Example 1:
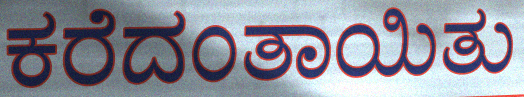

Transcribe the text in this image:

ಕರೆದಂತಾಯಿತು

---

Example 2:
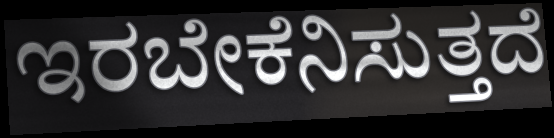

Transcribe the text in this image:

ಇರಬೇಕೆನಿಸುತ್ತದೆ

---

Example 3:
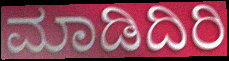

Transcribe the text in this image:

ಮಾಡಿದಿರಿ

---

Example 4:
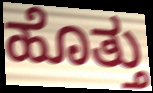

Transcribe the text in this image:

ಹೊತ್ತು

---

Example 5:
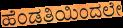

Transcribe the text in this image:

ಹೆಂಡತಿಯಿಂದಲೇ